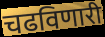
चढविणारी